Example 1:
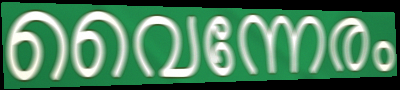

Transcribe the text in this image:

വൈന്നേരം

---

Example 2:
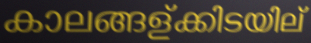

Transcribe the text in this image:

കാലങ്ങള്ക്കിടയില്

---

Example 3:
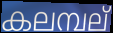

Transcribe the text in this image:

കലമ്പല്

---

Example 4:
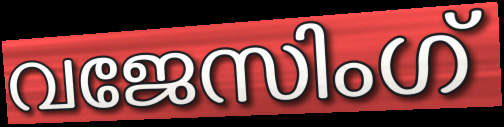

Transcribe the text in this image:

വജേസിംഗ്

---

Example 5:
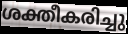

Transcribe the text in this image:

ശക്തീകരിച്ചു